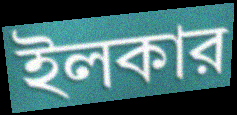
ইলকার